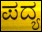
ಪದ್ಯ